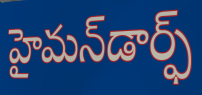
హైమన్‌డార్ఫ్